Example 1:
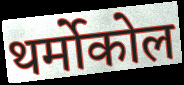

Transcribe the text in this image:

थर्मोकोल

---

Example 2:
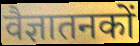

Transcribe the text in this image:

वैज्ञातनकों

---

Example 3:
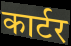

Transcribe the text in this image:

कार्टर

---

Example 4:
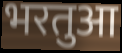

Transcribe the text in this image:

भरतुआ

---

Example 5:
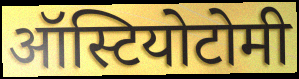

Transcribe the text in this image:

ऑस्टियोटोमी